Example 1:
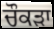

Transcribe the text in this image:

ਚੌਕੜਾ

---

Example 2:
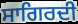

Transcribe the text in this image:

ਸਾਗਿਰਦੀ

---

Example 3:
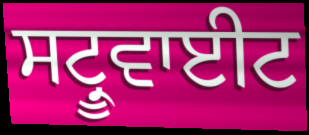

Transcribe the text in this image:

ਸਟ੍ਰੂਵਾਈਟ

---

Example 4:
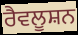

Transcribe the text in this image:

ਰੈਵਲੂਸ਼ਨ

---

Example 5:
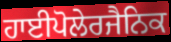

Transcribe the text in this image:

ਹਾਈਪੋਲੇਰਜੈਨਿਕ